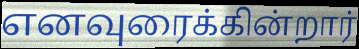
எனவுரைக்கின்றார்